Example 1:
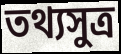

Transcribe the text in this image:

তথ্যসুত্র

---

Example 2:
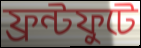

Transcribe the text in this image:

ফ্রন্টফুটে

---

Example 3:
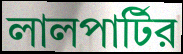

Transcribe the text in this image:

লালপার্টির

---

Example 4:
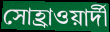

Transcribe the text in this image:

সোহ্রাওয়ার্দী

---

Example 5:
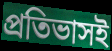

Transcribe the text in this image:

প্রতিভাসই